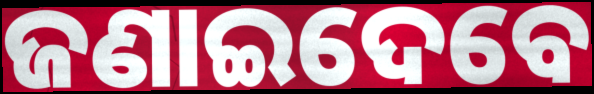
ଜଣାଇଦେବେ